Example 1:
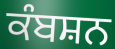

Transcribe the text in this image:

ਕੰਬਸ਼ਨ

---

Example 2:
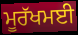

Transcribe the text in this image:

ਮੂਰੱਖਮਈ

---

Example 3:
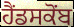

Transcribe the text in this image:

ਹੈਂਡਸਕੋਂਬ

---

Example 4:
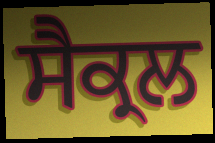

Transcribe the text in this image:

ਸੈਕ੍ਰਲ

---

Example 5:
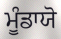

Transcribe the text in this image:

ਮੂੰਡਾਯੋ